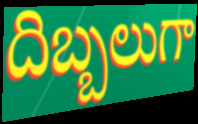
దిబ్బలుగా